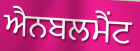
ਐਨਬਲਮੈਂਟ